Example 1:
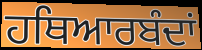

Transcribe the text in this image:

ਹਥਿਆਰਬੰਦਾਂ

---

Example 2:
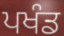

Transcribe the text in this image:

ਪਖੰਡ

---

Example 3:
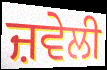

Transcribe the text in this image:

ਜ਼ਵੇਲੀ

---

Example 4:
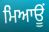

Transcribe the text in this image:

ਮਿਆਊਂ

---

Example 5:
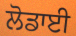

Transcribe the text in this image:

ਲੋਡਾਈ